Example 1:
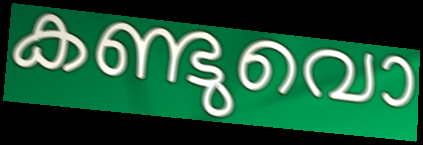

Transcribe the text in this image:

കണ്ടുവൊ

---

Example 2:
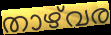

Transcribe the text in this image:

താഴ്‌വര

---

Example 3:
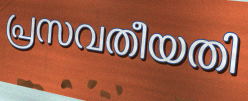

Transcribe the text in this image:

പ്രസവതീയതി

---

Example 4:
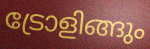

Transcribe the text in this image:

ട്രോളിങ്ങും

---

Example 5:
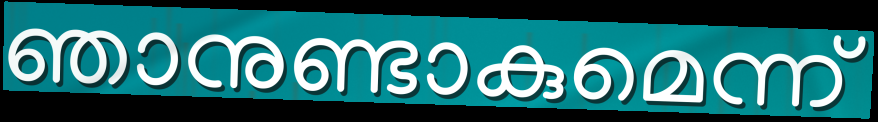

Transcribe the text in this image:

ഞാനുണ്ടാകുമെന്ന്